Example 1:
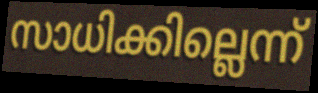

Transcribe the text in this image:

സാധിക്കില്ലെന്ന്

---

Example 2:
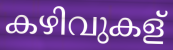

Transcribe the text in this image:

കഴിവുകള്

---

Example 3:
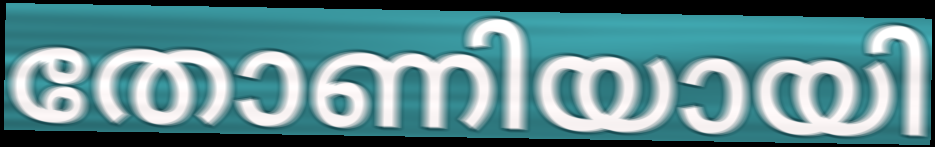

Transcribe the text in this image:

തോണിയായി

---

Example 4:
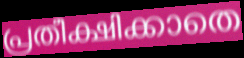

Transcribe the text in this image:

പ്രതീക്ഷിക്കാതെ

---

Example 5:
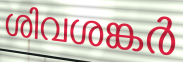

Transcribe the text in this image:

ശിവശങ്കർ